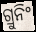
ଗ୍ରୁନିଂ